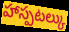
హాస్పటల్కు